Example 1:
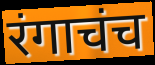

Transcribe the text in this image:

रंगाचंच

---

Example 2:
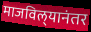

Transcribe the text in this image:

माजविल्यानंतर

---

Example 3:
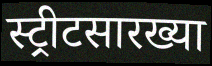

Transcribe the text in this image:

स्ट्रीटसारख्या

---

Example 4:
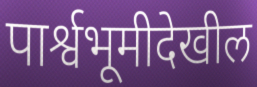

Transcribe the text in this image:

पार्श्वभूमीदेखील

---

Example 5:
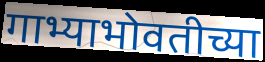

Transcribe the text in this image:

गाभ्याभोवतीच्या